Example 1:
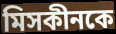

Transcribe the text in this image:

মিসকীনকে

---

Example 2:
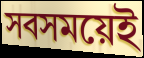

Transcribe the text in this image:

সবসময়েই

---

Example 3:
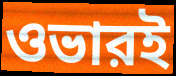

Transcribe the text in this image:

ওভারই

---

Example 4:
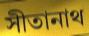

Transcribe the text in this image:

সীতানাথ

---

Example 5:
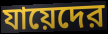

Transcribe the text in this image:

যায়েদের